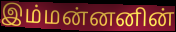
இம்மன்னனின்